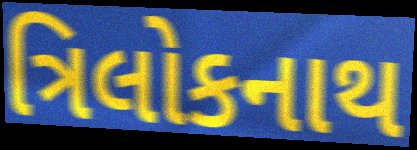
ત્રિલોકનાથ